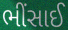
ભીંસાઈ